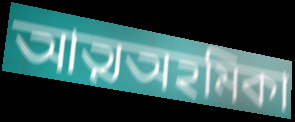
আত্মঅহমিকা